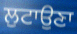
ਲੁਟਾਉਣਾ